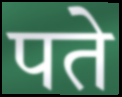
पते